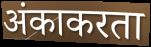
अंकाकरता